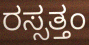
ರಸ್ಸತ್ತಂ